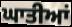
ਘਾਤੀਆਂ